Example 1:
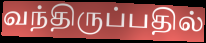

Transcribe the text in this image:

வந்திருப்பதில்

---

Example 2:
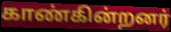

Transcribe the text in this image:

காண்கின்றனர்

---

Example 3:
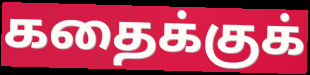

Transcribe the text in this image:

கதைக்குக்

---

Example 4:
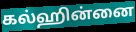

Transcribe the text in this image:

கல்ஹின்னை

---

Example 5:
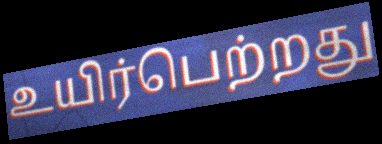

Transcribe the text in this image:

உயிர்பெற்றது